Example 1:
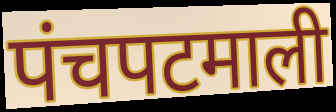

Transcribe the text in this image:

पंचपटमाली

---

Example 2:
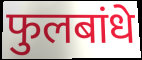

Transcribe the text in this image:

फुलबांधे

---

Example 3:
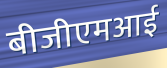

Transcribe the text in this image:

बीजीएमआई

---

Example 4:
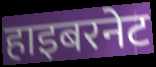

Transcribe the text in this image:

हाइबरनेट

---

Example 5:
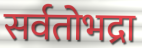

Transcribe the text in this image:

सर्वतोभद्रा